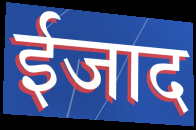
ईजाद